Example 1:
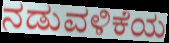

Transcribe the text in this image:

ನಡುವಳಿಕೆಯ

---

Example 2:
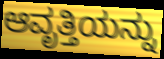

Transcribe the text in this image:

ಆವೃತ್ತಿಯನ್ನು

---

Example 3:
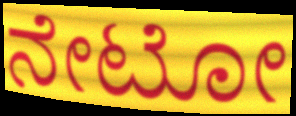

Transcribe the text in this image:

ನೇಟೋ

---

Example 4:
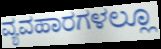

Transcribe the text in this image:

ವ್ಯವಹಾರಗಳಲ್ಲೂ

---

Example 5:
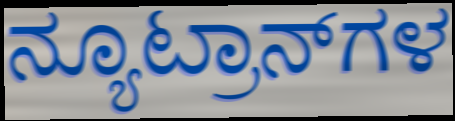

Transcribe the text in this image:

ನ್ಯೂಟ್ರಾನ್‌ಗಳ